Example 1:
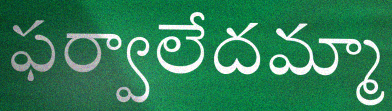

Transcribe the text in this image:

ఫర్వాలేదమ్మా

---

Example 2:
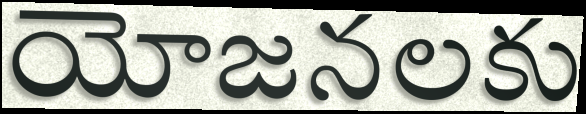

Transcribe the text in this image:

యోజనలకు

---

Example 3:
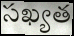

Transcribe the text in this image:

సఖ్యత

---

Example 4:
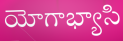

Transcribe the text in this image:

యోగాభ్యాసి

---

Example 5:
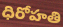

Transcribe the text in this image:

ధిరోహతి